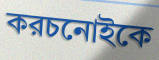
করচনোইকে